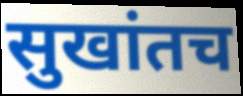
सुखांतच